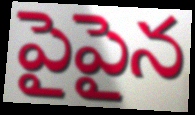
పైపైన